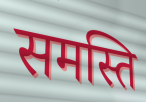
समस्ति